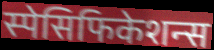
स्पेसिफिकेशन्स